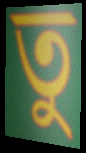
তু